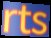
rts